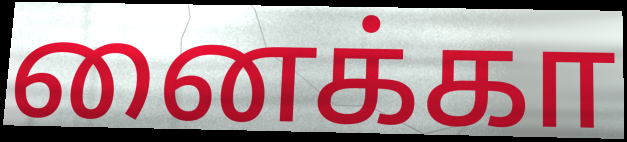
னைக்கா